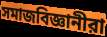
সমাজবিজ্ঞানীরা